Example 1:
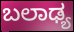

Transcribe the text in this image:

ಬಲಾಢ್ಯ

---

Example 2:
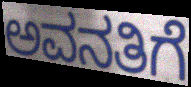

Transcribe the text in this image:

ಅವನತಿಗೆ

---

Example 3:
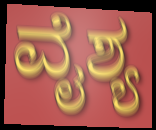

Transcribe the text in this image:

ವೈಶ್ಯ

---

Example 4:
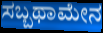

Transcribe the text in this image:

ಸಬ್ಬಥಾಮೇನ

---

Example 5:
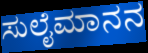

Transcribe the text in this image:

ಸುಲೈಮಾನನ